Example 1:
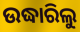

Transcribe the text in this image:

ଉଦ୍ଧାରିଲୁ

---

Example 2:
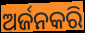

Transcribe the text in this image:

ଅର୍ଜନକରି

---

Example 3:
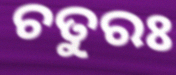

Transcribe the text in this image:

ଚତୁରଃ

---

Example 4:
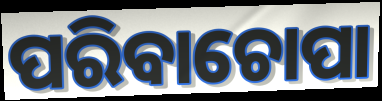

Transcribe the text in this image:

ପରିବାଚୋପା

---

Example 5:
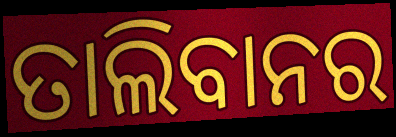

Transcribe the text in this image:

ତାଲିବାନର